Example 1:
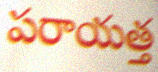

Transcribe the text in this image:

పరాయత్త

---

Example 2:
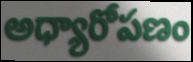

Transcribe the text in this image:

అధ్యారోపణం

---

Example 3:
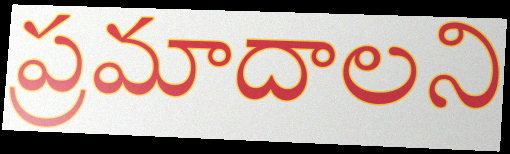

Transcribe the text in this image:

ప్రమాదాలని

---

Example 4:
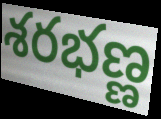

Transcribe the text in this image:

శరభణ్ణ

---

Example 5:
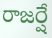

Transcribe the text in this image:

రాజర్షే